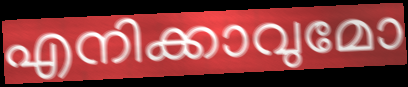
എനിക്കാവുമോ